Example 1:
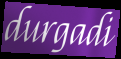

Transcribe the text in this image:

durgadi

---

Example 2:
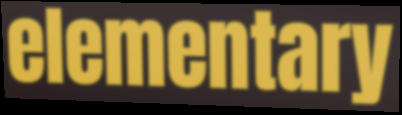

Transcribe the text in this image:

elementary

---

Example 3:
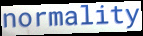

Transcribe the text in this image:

normality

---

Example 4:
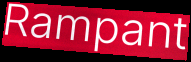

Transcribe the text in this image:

Rampant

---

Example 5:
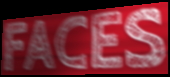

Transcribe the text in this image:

FACES